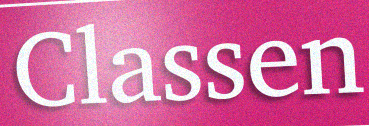
Classen